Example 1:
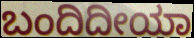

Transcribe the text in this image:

ಬಂದಿದೀಯಾ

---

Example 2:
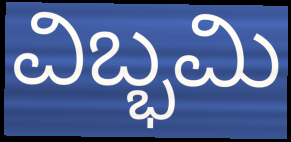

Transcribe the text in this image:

ವಿಬ್ಭಮಿ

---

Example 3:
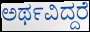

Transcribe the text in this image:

ಅರ್ಥವಿದ್ದರೆ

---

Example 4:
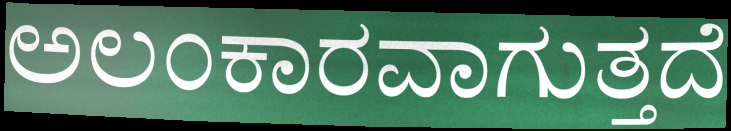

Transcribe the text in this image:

ಅಲಂಕಾರವಾಗುತ್ತದೆ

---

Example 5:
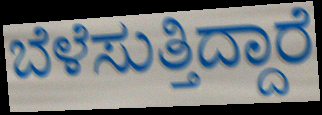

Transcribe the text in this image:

ಬೆಳೆಸುತ್ತಿದ್ದಾರೆ